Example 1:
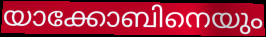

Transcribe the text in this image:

യാക്കോബിനെയും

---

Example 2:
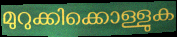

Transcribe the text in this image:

മുറുക്കിക്കൊള്ളുക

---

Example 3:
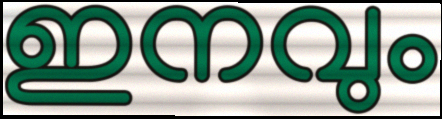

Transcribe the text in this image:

ഇനവും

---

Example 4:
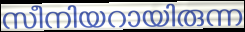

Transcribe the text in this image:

സീനിയറായിരുന്ന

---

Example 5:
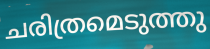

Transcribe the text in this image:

ചരിത്രമെടുത്തു